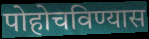
पोहोचविण्यास